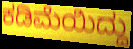
ಕಡಿಮೆಯಿದ್ದು